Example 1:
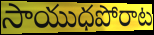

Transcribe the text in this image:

సాయుధపోరాట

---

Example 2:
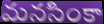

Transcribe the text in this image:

మనసింకా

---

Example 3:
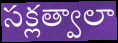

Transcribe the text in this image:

సక్లత్వాలా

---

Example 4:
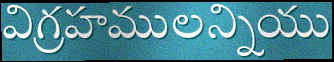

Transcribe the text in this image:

విగ్రహములన్నియు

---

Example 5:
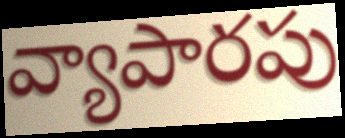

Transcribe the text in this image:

వ్యాపారపు